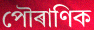
পৌৰাণিক